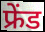
फ्रेंड